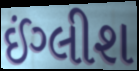
ઈંગ્લીશ